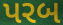
પરબ